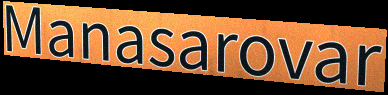
Manasarovar